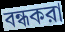
বন্ধকরা